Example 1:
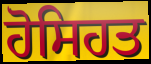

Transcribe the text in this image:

ਹੋਸਿਹਤ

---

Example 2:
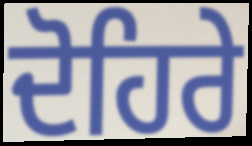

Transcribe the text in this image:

ਦੋਹਿਰੇ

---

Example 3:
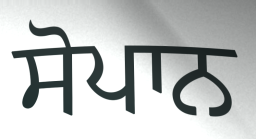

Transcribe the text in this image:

ਸੋਪਾਨ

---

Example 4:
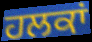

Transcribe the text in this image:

ਹਲਕਾਂ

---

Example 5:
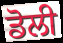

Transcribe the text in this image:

ਡੋਲੀ